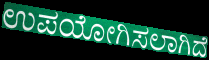
ಉಪಯೋಗಿಸಲಾಗಿದೆ